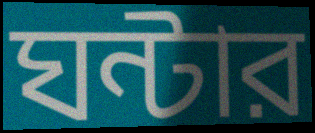
ঘন্টার